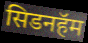
सिडनहॅम